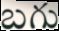
బగు